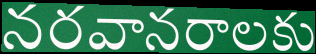
నరవానరాలకు